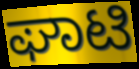
ಘಾಟಿ